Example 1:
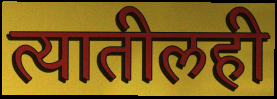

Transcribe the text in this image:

त्यातीलही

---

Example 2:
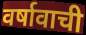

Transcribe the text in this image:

वर्षावाची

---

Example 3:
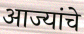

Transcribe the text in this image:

आज्यांचे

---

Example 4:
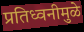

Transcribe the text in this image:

प्रतिध्वनीमुळे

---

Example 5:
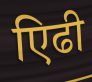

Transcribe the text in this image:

एिढी